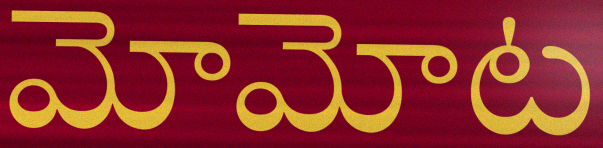
మోమోట